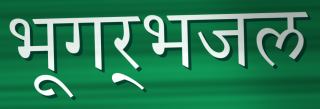
भूगर्भजल